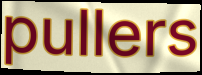
pullers